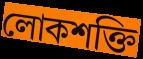
লোকশক্তি